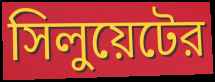
সিলুয়েটের